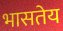
भासतेय